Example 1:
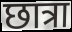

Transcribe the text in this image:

छात्रा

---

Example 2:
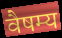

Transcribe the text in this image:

वैषम्य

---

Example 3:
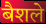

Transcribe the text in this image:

बैशले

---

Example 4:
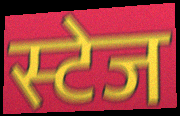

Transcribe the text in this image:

स्टेज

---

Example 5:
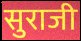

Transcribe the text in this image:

सुराजी